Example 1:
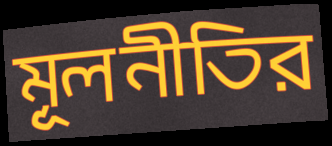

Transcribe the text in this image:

মূলনীতির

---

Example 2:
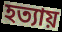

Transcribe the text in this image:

হত্যায়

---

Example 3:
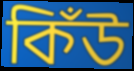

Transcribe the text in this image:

কিঁউ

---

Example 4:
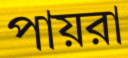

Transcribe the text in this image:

পায়রা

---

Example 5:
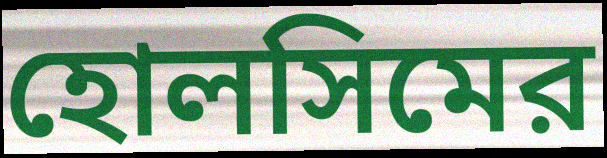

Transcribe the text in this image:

হোলসিমের